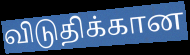
விடுதிக்கான